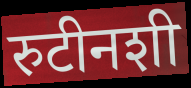
रुटीनशी